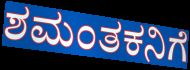
ಶಮಂತಕನಿಗೆ